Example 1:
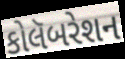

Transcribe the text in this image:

કોલૅબરેશન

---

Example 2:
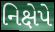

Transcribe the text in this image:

નિક્ષેપે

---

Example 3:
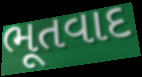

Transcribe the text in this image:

ભૂતવાદ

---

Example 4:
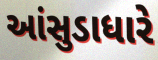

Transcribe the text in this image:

આંસુડાધારે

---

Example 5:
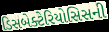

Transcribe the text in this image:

ડિસબેક્ટેરિયોસિસની